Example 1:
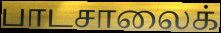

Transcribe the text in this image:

பாடசாலைக்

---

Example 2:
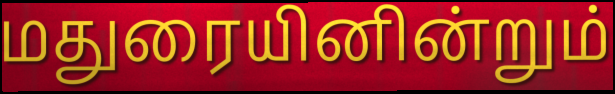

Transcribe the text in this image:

மதுரையினின்றும்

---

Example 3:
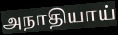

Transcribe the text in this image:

அநாதியாய்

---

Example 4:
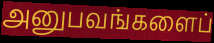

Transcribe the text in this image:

அனுபவங்களைப்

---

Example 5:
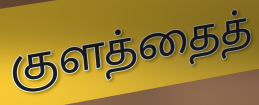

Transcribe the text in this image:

குளத்தைத்